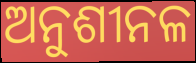
ଅନୁଶୀନଳ